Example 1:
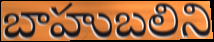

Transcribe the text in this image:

బాహుబలిని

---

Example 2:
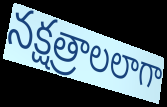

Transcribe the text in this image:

నక్షత్రాలలాగా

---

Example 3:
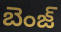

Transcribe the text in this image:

బెంజ్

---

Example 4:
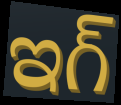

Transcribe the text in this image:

ఇగ్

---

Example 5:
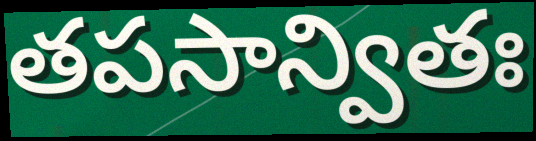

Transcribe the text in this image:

తపసాన్వితః